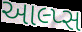
આલ્પ્સ